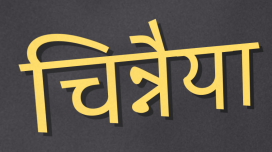
चिन्नैया